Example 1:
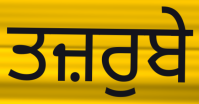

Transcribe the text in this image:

ਤਜ਼ਰੁਬੇ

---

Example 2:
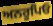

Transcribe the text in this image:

ਅਨਰੂਪਿਓ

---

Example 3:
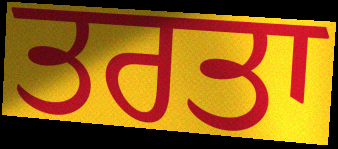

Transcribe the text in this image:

ਤਰਤਾ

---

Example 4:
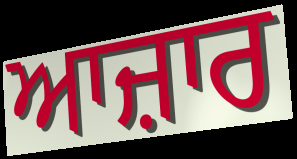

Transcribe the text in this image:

ਆਜ਼ਾਰ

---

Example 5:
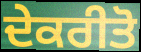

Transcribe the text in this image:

ਦੇਕਰੀਤੋ